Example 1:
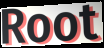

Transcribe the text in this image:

Root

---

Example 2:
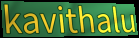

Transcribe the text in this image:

kavithalu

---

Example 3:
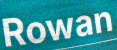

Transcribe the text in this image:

Rowan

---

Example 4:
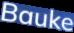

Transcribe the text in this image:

Bauke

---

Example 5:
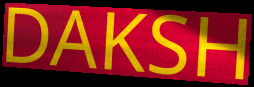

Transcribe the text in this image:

DAKSH